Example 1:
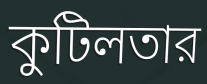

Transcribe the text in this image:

কুটিলতার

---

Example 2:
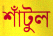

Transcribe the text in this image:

শাঁটুল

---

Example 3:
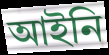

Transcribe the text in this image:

আইনি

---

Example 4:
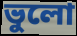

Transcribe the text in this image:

ভুলো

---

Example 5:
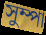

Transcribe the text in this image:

সুম্পা